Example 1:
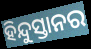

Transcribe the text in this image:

ହିନ୍ଦୁସ୍ତାନର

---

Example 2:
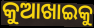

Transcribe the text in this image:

କୁଆଖାଇକୁ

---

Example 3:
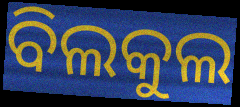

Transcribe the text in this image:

ବିଲକୁଲ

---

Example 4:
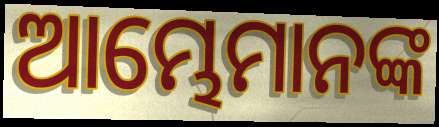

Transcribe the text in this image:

ଆମ୍ଭେମାନଙ୍କ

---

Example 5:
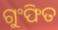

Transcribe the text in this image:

ଗୁଂଫିତ